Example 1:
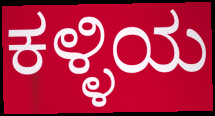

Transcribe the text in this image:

ಕಳ್ಳಿಯ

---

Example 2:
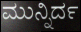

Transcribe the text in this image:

ಮುನ್ನಿರ್ದ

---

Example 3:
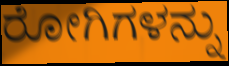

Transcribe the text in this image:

ರೋಗಿಗಳನ್ನು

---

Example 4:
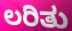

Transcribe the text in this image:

ಲರಿತು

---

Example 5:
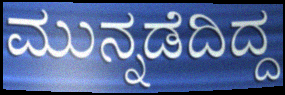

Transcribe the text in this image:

ಮುನ್ನಡೆದಿದ್ದ